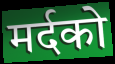
मर्दको